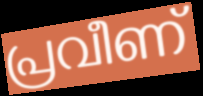
പ്രവീണ്